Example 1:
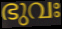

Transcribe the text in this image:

ഭുവഃ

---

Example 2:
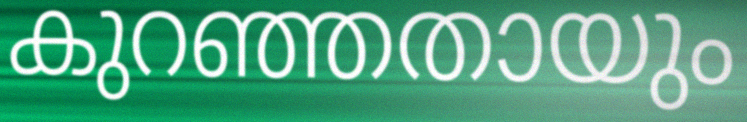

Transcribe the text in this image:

കുറഞ്ഞതായും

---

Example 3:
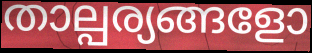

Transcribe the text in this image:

താല്പര്യങ്ങളോ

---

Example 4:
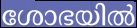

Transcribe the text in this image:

ശോഭയിൽ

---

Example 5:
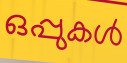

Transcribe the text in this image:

ഒപ്പുകൾ